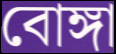
বোঙ্গা